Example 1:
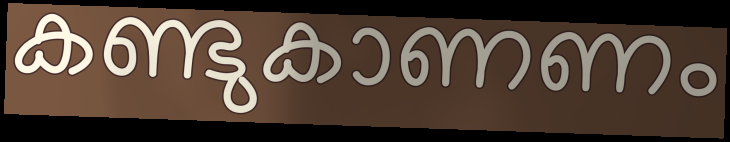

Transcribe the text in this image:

കണ്ടുകാണണം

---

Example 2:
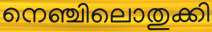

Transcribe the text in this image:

നെഞ്ചിലൊതുക്കി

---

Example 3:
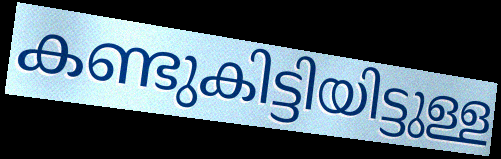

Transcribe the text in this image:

കണ്ടുകിട്ടിയിട്ടുള്ള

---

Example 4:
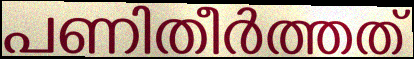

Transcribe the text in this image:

പണിതീർത്തത്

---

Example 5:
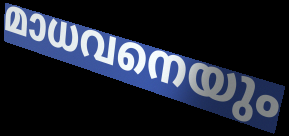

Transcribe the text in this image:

മാധവനെയും